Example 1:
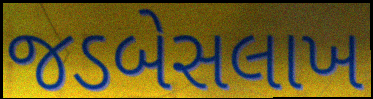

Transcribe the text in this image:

જડબેસલાખ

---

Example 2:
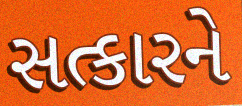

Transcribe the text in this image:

સત્કારને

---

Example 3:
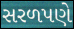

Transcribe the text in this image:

સરળપણે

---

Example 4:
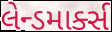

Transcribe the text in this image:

લેન્ડમાર્ક્સ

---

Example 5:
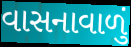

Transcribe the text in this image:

વાસનાવાળું